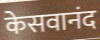
केसवानंद